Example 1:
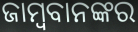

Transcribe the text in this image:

ଜାମ୍ବବାନଙ୍କର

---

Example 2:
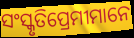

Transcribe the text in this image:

ସଂସ୍କୃତିପ୍ରେମୀମାନେ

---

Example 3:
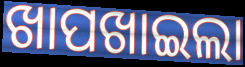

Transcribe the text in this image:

ଖାପଖାଇଲା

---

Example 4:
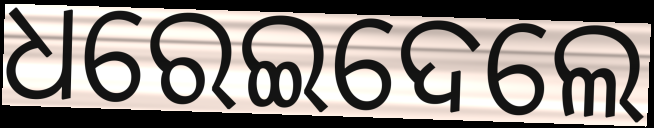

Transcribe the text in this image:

ଧରେଇଦେଲେ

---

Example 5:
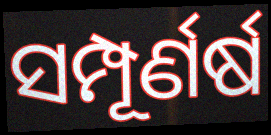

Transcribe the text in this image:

ସମ୍ପୂର୍ଣର୍ଷ